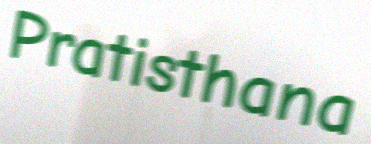
Pratisthana